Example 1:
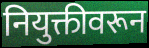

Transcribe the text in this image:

नियुक्तीवरून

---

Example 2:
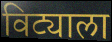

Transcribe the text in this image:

विट्याला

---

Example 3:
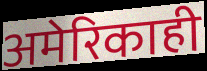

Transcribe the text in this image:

अमेरिकाही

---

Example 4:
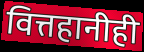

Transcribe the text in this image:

वित्तहानीही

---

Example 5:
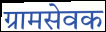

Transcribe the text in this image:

ग्रामसेवक